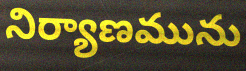
నిర్యాణమును